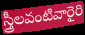
స్త్రీలవంటివారైరి